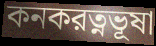
কনকরত্নভূষা